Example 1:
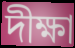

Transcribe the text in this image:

দীক্ষা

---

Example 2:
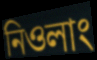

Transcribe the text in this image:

নিওলাং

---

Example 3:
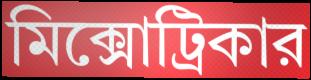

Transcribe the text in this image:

মিক্সোট্রিকার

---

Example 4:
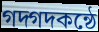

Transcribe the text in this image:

গদ্গদকন্ঠে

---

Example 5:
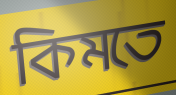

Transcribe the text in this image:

কিমতে